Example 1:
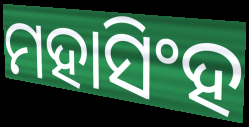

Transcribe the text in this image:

ମହାସିଂହ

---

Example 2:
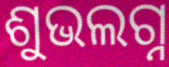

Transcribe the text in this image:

ଶୁଭଲଗ୍ନ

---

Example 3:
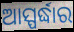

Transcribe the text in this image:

ଆସ୍ପର୍ଦ୍ଧାର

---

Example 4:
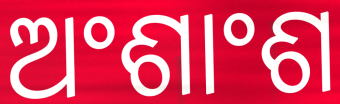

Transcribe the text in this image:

ଅଂଶାଂଶ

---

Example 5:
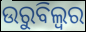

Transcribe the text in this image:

ଉରୁବିଲ୍ଵର